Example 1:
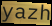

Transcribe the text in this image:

yazh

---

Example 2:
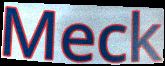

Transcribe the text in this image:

Meck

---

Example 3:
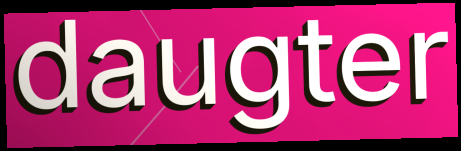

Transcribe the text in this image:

daugter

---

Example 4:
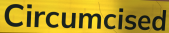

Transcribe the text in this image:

Circumcised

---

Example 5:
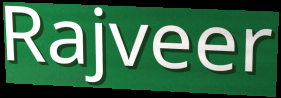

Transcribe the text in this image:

Rajveer